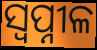
ସ୍ୱପ୍ନୀଳ